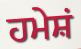
ਹਮੇਸ਼ਂ